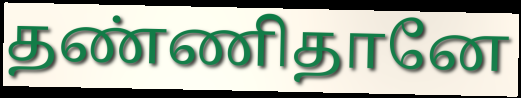
தண்ணிதானே